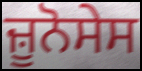
ਜ਼ੂਨੋਸੇਸ